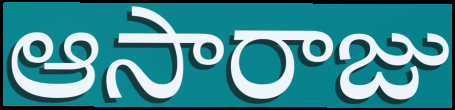
ఆసారాజు